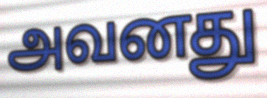
அவனது